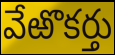
వేఱొకర్తు